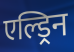
एल्ड्रिन